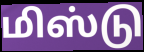
மிஸ்டு